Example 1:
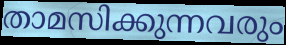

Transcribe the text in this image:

താമസിക്കുന്നവരും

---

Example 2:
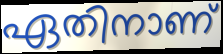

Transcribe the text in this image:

ഏതിനാണ്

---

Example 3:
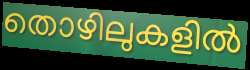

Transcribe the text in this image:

തൊഴിലുകളിൽ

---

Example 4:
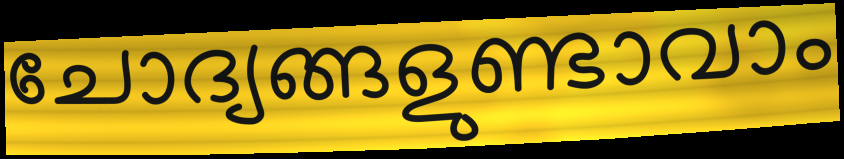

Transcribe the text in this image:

ചോദ്യങ്ങളുണ്ടാവാം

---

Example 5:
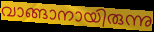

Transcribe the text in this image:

വാങ്ങാനായിരുന്നു